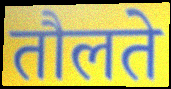
तौलते